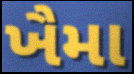
ખૈમા